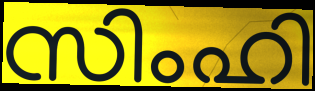
സിംഹി